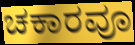
ಚಕಾರವೂ